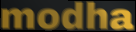
modha